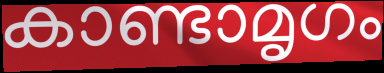
കാണ്ടാമൃഗം